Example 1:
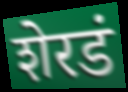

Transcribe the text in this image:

शेरडं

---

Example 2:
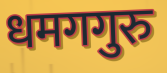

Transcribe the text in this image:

धमगगुरु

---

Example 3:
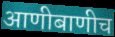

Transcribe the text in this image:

आणीबाणीच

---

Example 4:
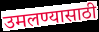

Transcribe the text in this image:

उमलण्यासाठी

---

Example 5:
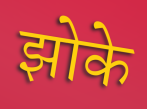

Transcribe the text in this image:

झोके